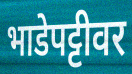
भाडेपट्टीवर